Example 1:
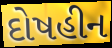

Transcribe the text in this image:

દોષહીન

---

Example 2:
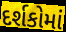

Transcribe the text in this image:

દર્શકોમાં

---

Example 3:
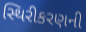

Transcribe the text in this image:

સ્થિરીકરણની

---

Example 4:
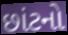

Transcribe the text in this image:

છાંટનો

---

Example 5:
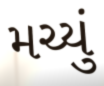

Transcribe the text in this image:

મચ્યું